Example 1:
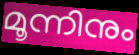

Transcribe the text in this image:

മൂന്നിനും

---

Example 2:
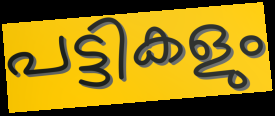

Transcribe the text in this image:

പട്ടികളും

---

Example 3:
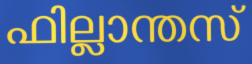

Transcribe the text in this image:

ഫില്ലാന്തസ്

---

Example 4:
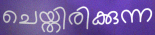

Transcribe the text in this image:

ചെയ്തിരിക്കുന്ന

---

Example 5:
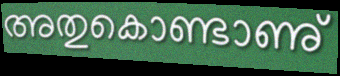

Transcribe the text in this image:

അതുകൊണ്ടാണു്